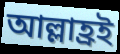
আল্লাহ্রই